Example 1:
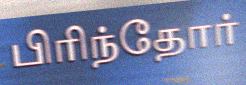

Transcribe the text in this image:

பிரிந்தோர்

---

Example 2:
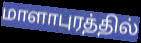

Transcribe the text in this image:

மாளாபுரத்தில்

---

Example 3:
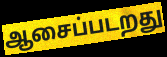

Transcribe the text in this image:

ஆசைப்படறது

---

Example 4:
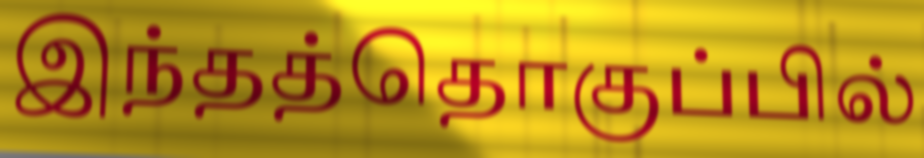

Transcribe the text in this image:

இந்தத்தொகுப்பில்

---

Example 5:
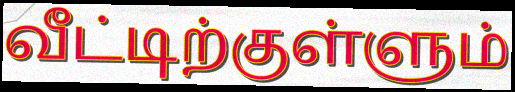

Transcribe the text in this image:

வீட்டிற்குள்ளும்